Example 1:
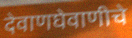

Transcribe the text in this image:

देवाणघेवाणीचे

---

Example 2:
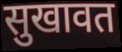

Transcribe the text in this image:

सुखावत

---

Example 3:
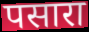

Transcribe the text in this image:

पसारा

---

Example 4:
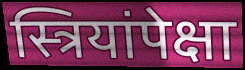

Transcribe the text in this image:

स्त्रियांपेक्षा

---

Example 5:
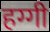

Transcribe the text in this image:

हग्गी